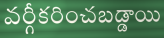
వర్గీకరించబడ్డాయి